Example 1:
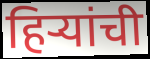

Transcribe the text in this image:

हिऱ्यांची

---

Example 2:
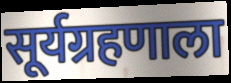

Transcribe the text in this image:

सूर्यग्रहणाला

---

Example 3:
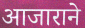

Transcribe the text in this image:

आजाराने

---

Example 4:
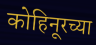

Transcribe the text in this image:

कोहिनूरच्या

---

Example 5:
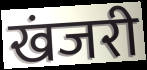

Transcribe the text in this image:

खंजरी